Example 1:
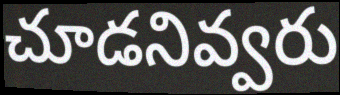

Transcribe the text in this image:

చూడనివ్వరు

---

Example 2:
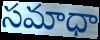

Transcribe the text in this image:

సమాధా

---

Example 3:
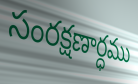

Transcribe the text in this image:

సంరక్షణార్ధము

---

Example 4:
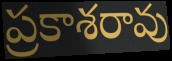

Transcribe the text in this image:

ప్రకాశరావు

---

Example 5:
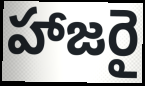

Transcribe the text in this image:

హాజరై